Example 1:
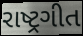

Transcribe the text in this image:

રાષ્ટ્રગીત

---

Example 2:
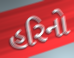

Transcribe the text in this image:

હરિનો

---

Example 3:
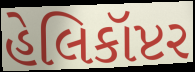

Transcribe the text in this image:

હેલિકૉપ્ટર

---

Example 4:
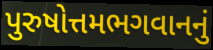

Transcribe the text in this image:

પુરુષોત્તમભગવાનનું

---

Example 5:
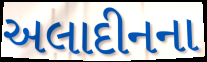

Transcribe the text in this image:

અલાદીનના